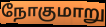
நோகுமாறு